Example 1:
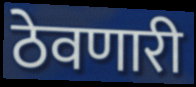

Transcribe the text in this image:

ठेवणारी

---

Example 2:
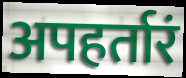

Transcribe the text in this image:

अपहर्तारं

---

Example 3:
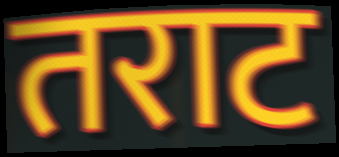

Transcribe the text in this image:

तराट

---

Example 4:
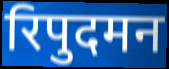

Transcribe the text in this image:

रिपुदमन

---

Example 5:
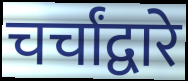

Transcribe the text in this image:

चर्चांद्वारे